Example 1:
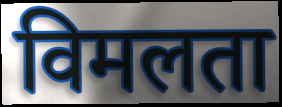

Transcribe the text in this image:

विमलता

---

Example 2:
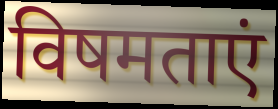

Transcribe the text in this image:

विषमताएं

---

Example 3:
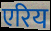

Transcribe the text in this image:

एरिय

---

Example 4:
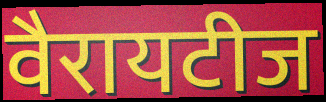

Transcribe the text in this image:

वैरायटीज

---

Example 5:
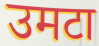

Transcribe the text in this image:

उमटा